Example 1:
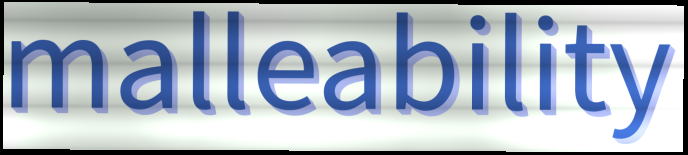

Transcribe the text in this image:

malleability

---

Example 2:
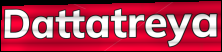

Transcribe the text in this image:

Dattatreya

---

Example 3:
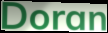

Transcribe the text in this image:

Doran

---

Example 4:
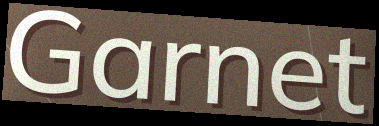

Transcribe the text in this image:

Garnet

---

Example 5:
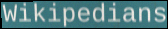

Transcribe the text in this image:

Wikipedians